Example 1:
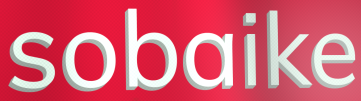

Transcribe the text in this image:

sobaike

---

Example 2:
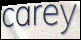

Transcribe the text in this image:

carey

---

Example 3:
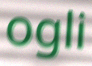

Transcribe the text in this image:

ogli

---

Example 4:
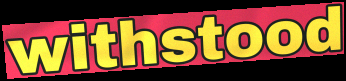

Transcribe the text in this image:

withstood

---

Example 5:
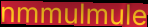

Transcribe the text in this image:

nmmulmule